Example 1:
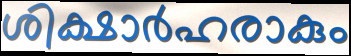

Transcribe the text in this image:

ശിക്ഷാർഹരാകും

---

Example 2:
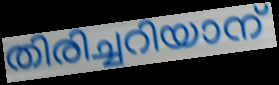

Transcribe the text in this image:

തിരിച്ചറിയാന്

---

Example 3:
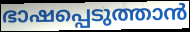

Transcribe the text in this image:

ഭാഷപ്പെടുത്താൻ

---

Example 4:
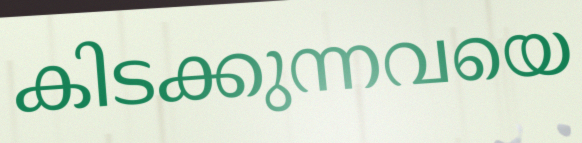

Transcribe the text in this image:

കിടക്കുന്നവയെ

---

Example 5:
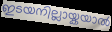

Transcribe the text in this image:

ഇടയനില്ലായ്കയാൽ